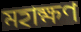
মহাক্ষণ